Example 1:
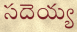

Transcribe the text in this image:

సదెయ్య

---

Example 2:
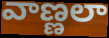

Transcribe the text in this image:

వాణ్ణలా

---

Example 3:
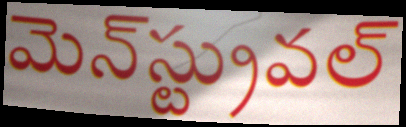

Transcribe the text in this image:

మెన్‌స్ట్రువల్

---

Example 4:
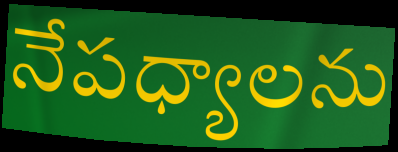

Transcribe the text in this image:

నేపధ్యాలను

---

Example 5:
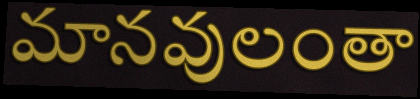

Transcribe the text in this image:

మానవులంతా